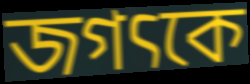
জগৎকে